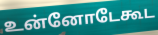
உன்னோடேகூட